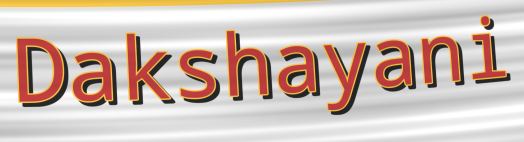
Dakshayani